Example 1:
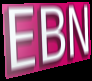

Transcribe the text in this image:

EBN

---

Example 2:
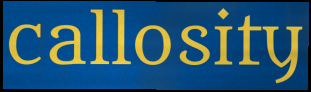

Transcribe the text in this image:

callosity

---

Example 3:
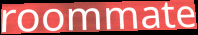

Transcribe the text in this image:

roommate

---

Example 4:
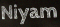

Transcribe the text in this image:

Niyam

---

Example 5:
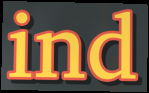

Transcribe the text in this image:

ind